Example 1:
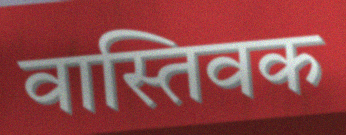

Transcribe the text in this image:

वास्तिवक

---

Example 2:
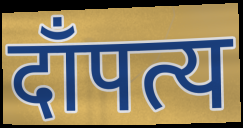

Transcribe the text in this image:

दाँपत्य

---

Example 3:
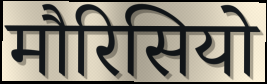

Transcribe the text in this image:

मौरिसियो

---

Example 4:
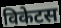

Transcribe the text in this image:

विकेटस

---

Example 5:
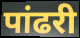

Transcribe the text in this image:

पांढरी